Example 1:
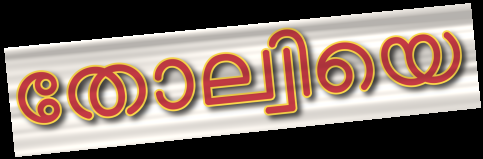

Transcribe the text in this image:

തോല്വിയെ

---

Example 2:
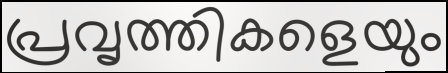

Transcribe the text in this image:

പ്രവൃത്തികളെയും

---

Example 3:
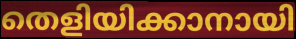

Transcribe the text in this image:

തെളിയിക്കാനായി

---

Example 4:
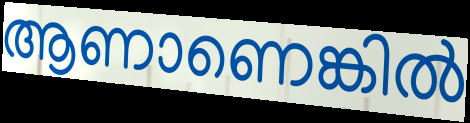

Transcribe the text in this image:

ആണാണെങ്കിൽ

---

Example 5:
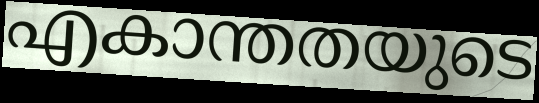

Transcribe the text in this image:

എകാന്തതയുടെ